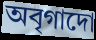
অবৃগাদো